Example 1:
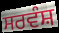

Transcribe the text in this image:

ਸਰਵੰਸ਼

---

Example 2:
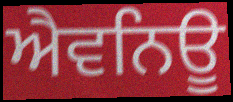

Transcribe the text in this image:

ਐਵਨਿਊ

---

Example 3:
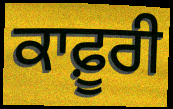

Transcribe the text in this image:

ਕਾਫ਼ੂਰੀ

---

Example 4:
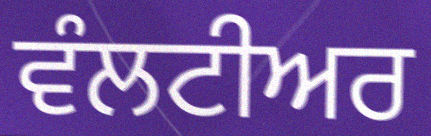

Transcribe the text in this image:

ਵੰਲਟੀਅਰ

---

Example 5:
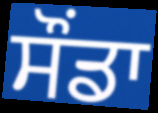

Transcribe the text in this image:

ਸੌਂਡਾ